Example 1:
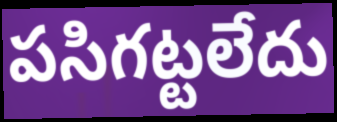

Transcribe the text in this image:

పసిగట్టలేదు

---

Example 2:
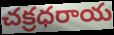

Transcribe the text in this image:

చక్రధరాయ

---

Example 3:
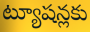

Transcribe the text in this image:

ట్యూషన్లకు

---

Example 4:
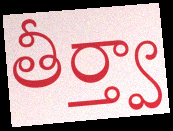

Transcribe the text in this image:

తీర్త్వా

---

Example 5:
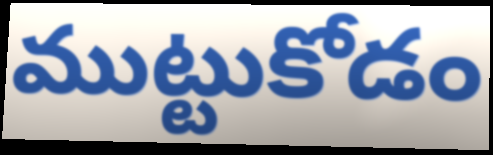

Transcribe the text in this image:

ముట్టుకోడం